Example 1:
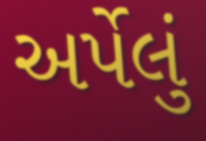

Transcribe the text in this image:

અર્પેલું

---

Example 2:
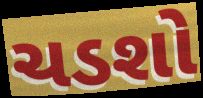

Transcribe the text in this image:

ચડશો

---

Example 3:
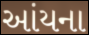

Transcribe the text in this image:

આંયના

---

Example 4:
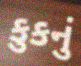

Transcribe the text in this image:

કુકનું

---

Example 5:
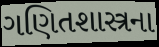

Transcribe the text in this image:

ગણિતશાસ્ત્રના